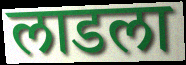
लाडला